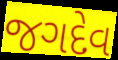
જગદેવ